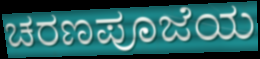
ಚರಣಪೂಜೆಯ